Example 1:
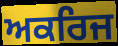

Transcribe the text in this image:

ਅਕਰਿਜ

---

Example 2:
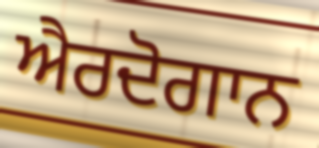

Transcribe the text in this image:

ਐਰਦੋਗਾਨ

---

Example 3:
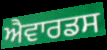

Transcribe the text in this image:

ਐਵਾਰਡਸ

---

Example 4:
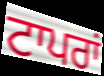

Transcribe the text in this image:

ਟਾਪਰਾਂ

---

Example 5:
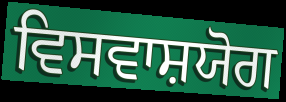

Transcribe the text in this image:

ਵਿਸਵਾਸ਼ਯੋਗ